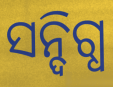
ସନ୍ଦିଗ୍ଧ